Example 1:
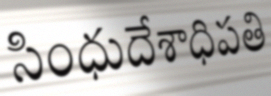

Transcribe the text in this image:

సింధుదేశాధిపతి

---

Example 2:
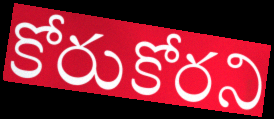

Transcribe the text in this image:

కోరుకోరని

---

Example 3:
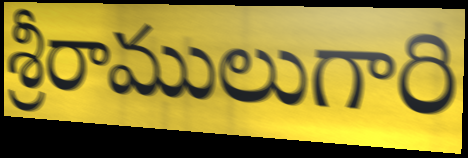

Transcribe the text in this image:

శ్రీరాములుగారి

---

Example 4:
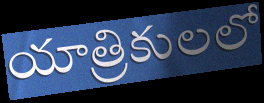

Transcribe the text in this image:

యాత్రికులలో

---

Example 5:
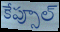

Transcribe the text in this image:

కేప్సూల్